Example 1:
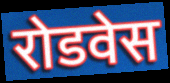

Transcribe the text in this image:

रोडवेस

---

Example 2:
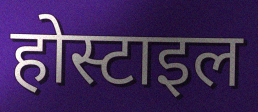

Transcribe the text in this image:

होस्टाइल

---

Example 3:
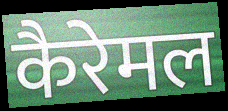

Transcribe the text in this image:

कैरेमल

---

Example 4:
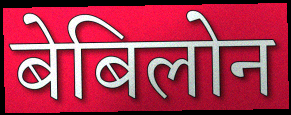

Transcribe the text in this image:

बेबिलोन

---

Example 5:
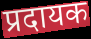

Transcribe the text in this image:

प्रदायक